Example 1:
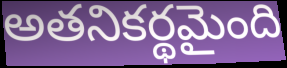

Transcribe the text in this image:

అతనికర్థమైంది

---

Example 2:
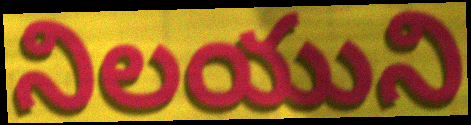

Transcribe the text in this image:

నిలయుని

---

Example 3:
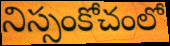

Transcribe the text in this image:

నిస్సంకోచంలో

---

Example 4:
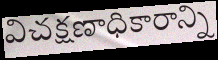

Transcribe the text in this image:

విచక్షణాధికారాన్ని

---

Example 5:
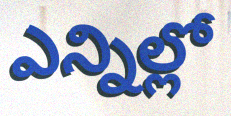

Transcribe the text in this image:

ఎన్నిల్లో